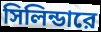
সিলিন্ডারে